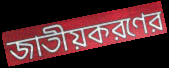
জাতীয়করণের